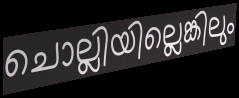
ചൊല്ലിയില്ലെങ്കിലും